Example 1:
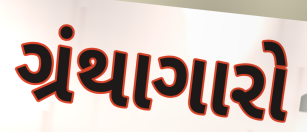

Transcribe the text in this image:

ગ્રંથાગારો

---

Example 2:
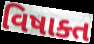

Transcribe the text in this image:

વિષાક્ત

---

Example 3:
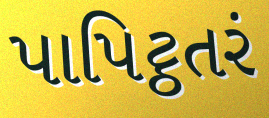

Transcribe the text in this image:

પાપિટ્ઠતરં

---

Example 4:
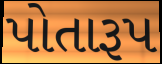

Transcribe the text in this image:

પોતારૂપ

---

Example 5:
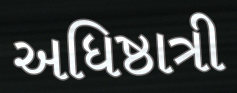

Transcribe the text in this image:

અધિષ્ઠાત્રી